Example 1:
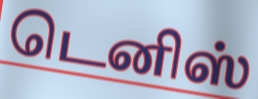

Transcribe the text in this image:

டெனிஸ்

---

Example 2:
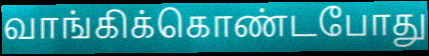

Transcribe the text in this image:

வாங்கிக்கொண்டபோது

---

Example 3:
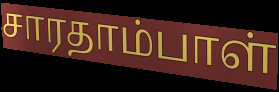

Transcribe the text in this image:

சாரதாம்பாள்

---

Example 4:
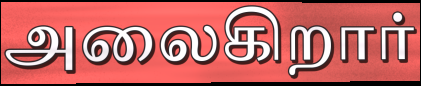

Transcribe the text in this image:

அலைகிறார்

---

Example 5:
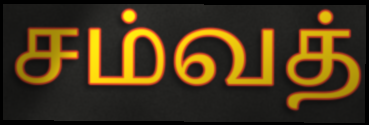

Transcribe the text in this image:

சம்வத்